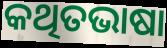
କଥିତଭାଷା